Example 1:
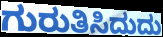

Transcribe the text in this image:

ಗುರುತಿಸಿದುದು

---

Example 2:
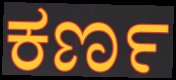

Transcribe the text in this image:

ಕರ್ಣ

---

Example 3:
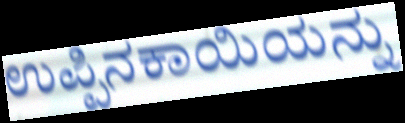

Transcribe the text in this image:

ಉಪ್ಪಿನಕಾಯಿಯನ್ನು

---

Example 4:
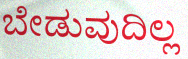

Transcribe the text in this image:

ಬೇಡುವುದಿಲ್ಲ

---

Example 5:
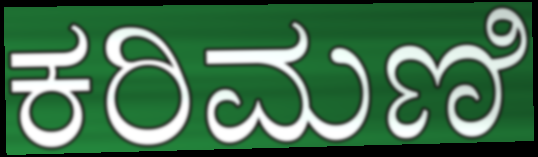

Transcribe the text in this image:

ಕರಿಮಣಿ